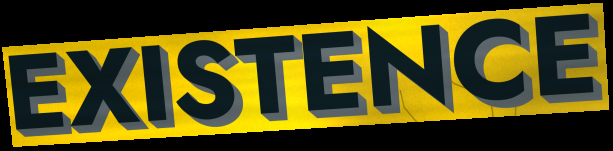
EXISTENCE